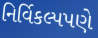
નિર્વિકલ્પપણે